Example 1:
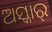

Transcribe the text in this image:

ଅସ୍କାର୍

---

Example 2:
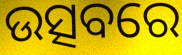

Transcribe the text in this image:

ଉତ୍ସବରେ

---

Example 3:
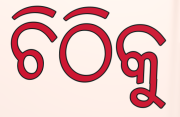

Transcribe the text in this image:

ଚିଠିକୁ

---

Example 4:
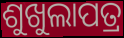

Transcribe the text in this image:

ଶୁଖୁଲାପତ୍ର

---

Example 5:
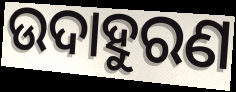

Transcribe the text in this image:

ଉଦାହୁରଣ